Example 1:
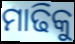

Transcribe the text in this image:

ମାଢିକୁ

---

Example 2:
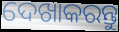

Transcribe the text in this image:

ଦେଖାକରନ୍ତୁ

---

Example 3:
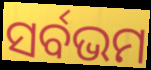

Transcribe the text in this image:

ସର୍ବଭମ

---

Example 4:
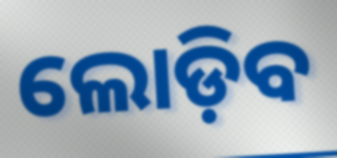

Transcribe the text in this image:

ଲୋଡ଼ିବ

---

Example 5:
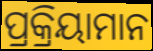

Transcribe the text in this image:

ପ୍ରକ୍ରିୟାମାନ